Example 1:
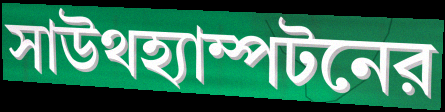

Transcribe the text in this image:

সাউথহ্যাম্পটনের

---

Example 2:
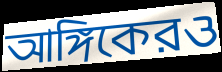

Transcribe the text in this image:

আঙ্গিকেরও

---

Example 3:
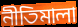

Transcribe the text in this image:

নীতিমালা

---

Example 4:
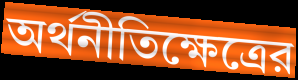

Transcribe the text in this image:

অর্থনীতিক্ষেত্রের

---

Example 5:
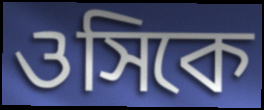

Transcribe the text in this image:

ওসিকে